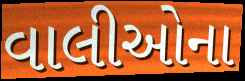
વાલીઓના